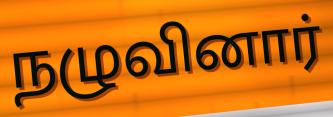
நழுவினார்